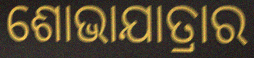
ଶୋଭାଯାତ୍ରାର